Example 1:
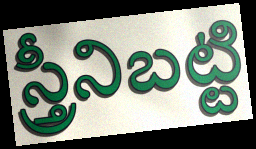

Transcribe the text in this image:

స్త్రీనిబట్టి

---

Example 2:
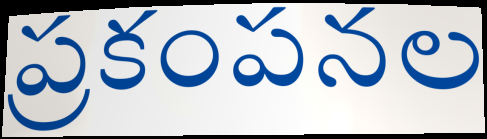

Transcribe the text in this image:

ప్రకంపనల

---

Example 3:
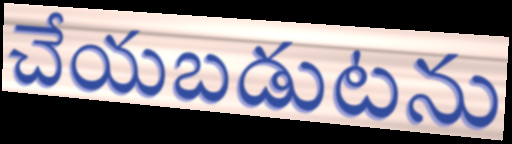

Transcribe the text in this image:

చేయబడుటను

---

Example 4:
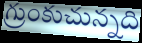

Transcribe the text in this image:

గ్రుంకుచున్నది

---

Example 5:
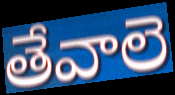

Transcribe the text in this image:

తేవాలె